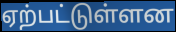
ஏற்பட்டுள்ளன